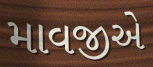
માવજીએ